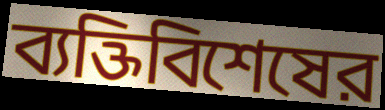
ব্যক্তিবিশেষের